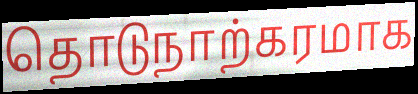
தொடுநாற்கரமாக